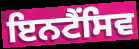
ਇਨਟੈਂਸਿਵ